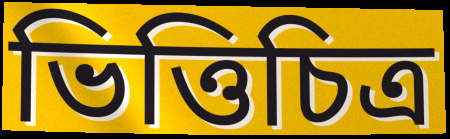
ভিত্তিচিত্র